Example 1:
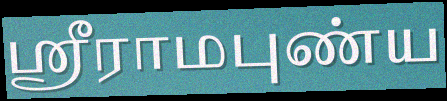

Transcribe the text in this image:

ஸ்ரீராமபுண்ய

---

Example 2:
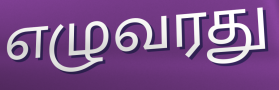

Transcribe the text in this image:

எழுவரது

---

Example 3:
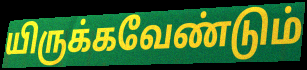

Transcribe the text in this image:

யிருக்கவேண்டும்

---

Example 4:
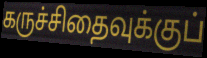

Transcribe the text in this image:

கருச்சிதைவுக்குப்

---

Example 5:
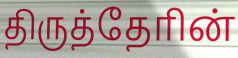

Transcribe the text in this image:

திருத்தேரின்